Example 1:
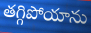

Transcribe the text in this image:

తగ్గిపోయాను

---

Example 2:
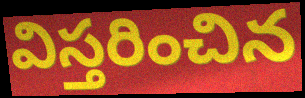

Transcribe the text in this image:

విస్తరించిన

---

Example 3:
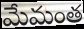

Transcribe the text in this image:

మేమంత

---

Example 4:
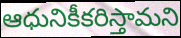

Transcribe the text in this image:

ఆధునికీకరిస్తామని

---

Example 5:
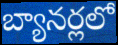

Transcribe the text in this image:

బ్యానర్లలో